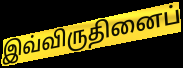
இவ்விருதினைப்